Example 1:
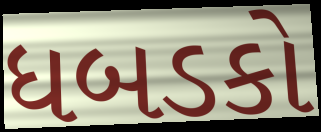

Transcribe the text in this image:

ધબડકો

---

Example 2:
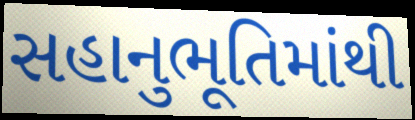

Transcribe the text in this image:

સહાનુભૂતિમાંથી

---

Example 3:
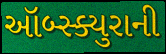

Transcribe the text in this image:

ઑબ્સ્ક્યુરાની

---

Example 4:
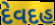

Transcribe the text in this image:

દેવદહ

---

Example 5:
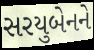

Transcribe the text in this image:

સરયુબેનને